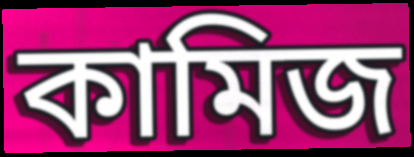
কামিজ